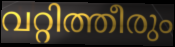
വറ്റിത്തീരും